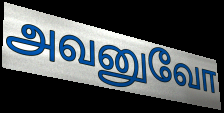
அவனுவோ